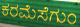
ಕರಮೆಸೆಗುಂ